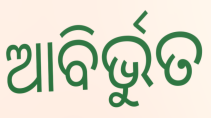
ଆବିର୍ଭୁତ